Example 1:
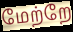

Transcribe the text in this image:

மேற்றே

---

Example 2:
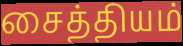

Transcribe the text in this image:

சைத்தியம்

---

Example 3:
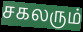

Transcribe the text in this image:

சகலரும்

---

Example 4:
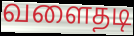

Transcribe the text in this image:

வளைதடி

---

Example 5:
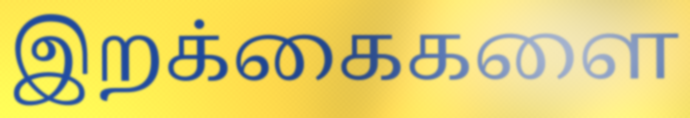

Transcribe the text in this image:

இறக்கைகளை